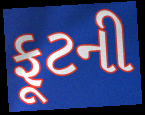
ફૂટની